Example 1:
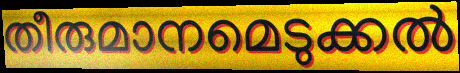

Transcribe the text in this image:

തീരുമാനമെടുക്കൽ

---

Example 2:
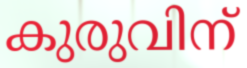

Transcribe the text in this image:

കുരുവിന്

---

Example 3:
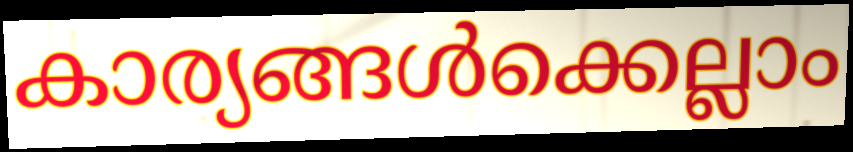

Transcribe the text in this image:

കാര്യങ്ങൾക്കെല്ലാം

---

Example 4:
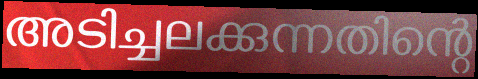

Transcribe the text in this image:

അടിച്ചലക്കുന്നതിന്റെ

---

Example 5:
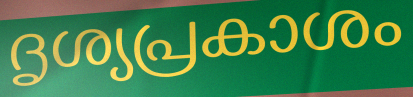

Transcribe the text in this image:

ദൃശ്യപ്രകാശം